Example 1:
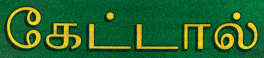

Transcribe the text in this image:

கேட்டால்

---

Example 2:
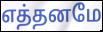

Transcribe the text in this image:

எத்தனமே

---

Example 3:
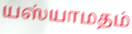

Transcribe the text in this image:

யஸ்யாமதம்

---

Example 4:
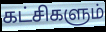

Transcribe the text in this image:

கட்சிகளும்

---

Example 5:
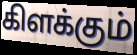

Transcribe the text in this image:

கிளக்கும்